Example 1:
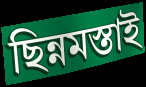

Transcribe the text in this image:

ছিন্নমস্তাই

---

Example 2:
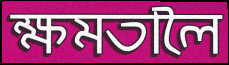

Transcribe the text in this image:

ক্ষমতালৈ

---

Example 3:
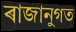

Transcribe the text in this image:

ৰাজানুগত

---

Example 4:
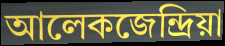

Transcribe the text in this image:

আলেকজেন্দ্ৰিয়া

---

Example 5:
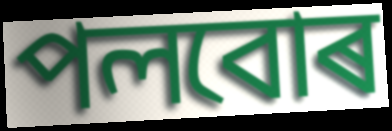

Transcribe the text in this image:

পলবোৰ